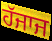
ਹੱਜਾਜ